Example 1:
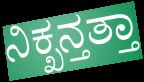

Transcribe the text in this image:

ನಿಕ್ಖನ್ತತ್ತಾ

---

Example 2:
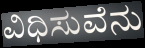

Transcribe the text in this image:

ವಿಧಿಸುವೆನು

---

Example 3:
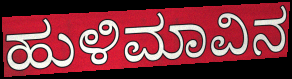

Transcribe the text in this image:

ಹುಳಿಮಾವಿನ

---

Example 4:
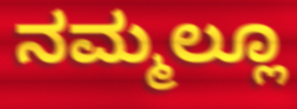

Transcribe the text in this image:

ನಮ್ಮಲ್ಲೂ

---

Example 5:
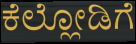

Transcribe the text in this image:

ಕೆಲ್ಲೋಡಿಗೆ